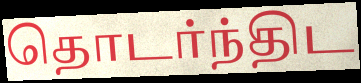
தொடர்ந்திட